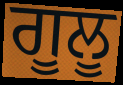
ਗੂਲੂ